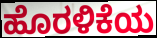
ಹೊರಳಿಕೆಯ